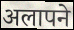
अलापने